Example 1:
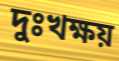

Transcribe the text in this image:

দুঃখক্ষয়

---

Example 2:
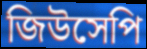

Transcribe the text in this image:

জিউসেপি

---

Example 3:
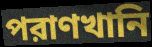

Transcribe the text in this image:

পরাণখানি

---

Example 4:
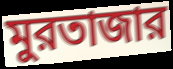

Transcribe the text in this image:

মুরতাজার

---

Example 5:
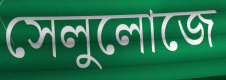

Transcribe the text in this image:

সেলুলোজে